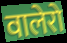
वालेरो